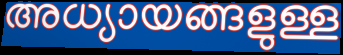
അധ്യായങ്ങളുള്ള